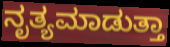
ನೃತ್ಯಮಾಡುತ್ತಾ